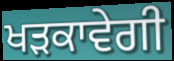
ਖੜਕਾਵੇਗੀ